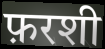
फ़रशी